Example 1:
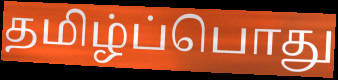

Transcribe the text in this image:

தமிழ்ப்பொது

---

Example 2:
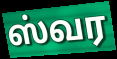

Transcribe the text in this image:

ஸ்வர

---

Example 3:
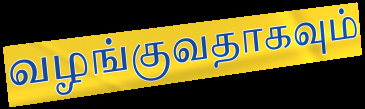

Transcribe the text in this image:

வழங்குவதாகவும்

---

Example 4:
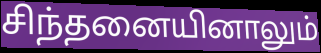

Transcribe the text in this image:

சிந்தனையினாலும்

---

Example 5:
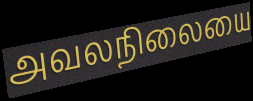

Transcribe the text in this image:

அவலநிலையை